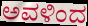
ಅವಳಿಂದ